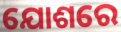
ଯୋଶରେ